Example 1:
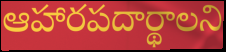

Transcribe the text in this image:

ఆహారపదార్థాలని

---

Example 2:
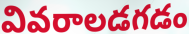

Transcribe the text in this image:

వివరాలడగడం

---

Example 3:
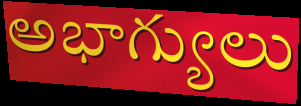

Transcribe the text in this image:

అభాగ్యులు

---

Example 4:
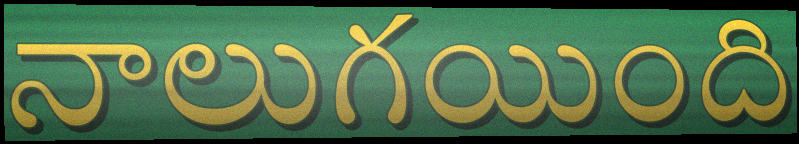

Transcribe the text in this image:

నాలుగయింది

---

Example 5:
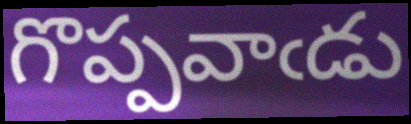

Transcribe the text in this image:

గొప్పవాఁడు